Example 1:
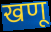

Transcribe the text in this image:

खणू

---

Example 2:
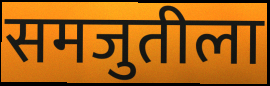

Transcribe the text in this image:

समजुतीला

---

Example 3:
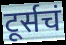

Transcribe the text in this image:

टूर्सचं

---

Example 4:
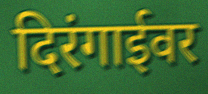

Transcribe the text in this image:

दिरंगाईवर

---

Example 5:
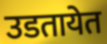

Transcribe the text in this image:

उडतायेत